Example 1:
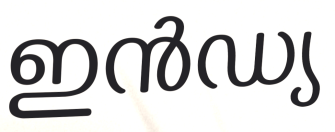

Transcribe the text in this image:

ഇൻഡ്യ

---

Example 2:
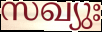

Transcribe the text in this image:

സഖ്യുഃ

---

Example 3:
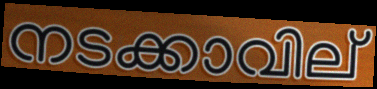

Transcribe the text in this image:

നടക്കാവില്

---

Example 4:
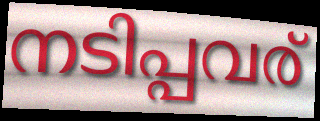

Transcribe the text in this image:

നടിപ്പവര്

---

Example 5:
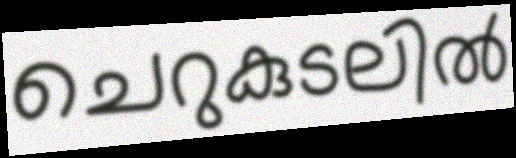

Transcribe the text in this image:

ചെറുകുടലിൽ